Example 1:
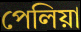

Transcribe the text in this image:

পেলিয়া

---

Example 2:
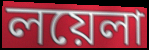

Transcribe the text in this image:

লয়েলা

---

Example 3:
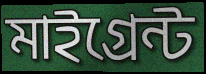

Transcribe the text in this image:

মাইগ্রেন্ট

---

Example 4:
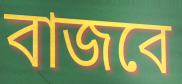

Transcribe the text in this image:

বাজবে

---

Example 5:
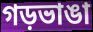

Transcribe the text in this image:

গড়ভাঙা